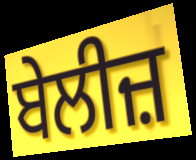
ਬੇਲੀਜ਼